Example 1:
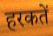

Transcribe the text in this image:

हरकतें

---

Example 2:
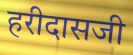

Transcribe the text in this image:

हरीदासजी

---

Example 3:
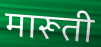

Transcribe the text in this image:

मारूती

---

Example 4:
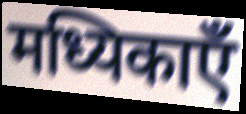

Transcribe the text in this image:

मध्यिकाएँ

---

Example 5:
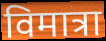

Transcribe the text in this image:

विमात्रा